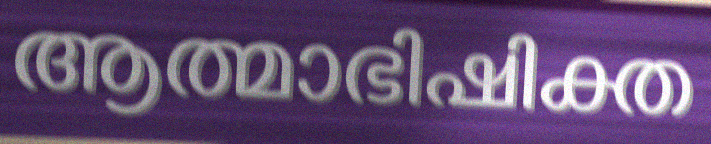
ആത്മാഭിഷിക്ത